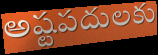
అష్టపదులకు